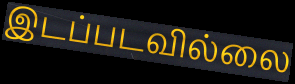
இடப்படவில்லை